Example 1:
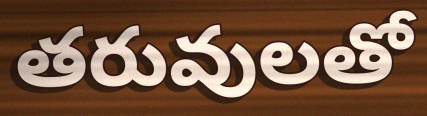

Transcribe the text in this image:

తరువులతో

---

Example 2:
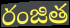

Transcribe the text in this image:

రంజిత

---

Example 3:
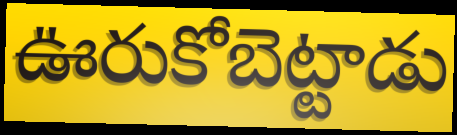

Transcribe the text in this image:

ఊరుకోబెట్టాడు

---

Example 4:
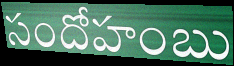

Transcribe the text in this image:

సందోహంబు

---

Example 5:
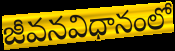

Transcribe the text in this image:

జీవనవిధానంలో